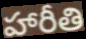
హారీతి